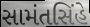
સામંતસિંહે